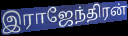
இராஜேந்திரன்